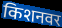
किशनवर